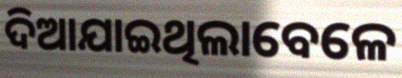
ଦିଆଯାଇଥିଲାବେଳେ